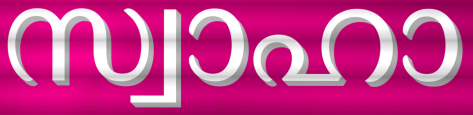
സ്വാഹാ